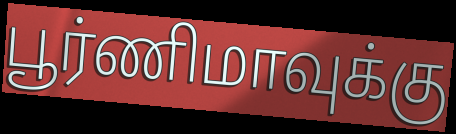
பூர்ணிமாவுக்கு